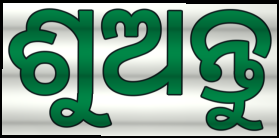
ଶୁଅନ୍ତୁ